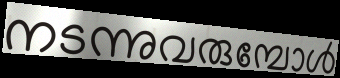
നടന്നുവരുമ്പോൾ